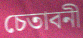
চেতাবনী